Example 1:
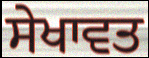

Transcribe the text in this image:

ਸੇਖਾਵਤ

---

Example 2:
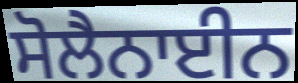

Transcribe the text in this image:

ਸੋਲੈਨਾਈਨ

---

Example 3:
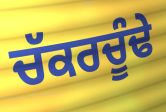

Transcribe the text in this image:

ਚੱਕਰਚੂੰਢੇ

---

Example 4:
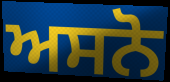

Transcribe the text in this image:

ਅਸਨੋ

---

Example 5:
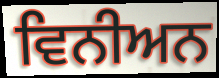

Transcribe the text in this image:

ਵਿਨੀਅਨ